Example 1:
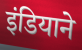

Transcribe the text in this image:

इंडियाने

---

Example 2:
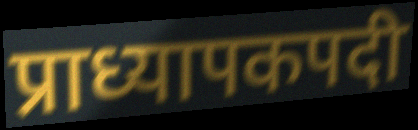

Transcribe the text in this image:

प्राध्यापकपदी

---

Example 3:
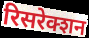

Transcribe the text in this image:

रिसरेक्शन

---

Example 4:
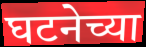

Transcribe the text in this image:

घटनेच्या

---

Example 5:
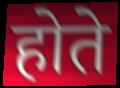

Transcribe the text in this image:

होते